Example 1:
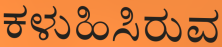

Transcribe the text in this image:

ಕಳುಹಿಸಿರುವ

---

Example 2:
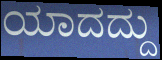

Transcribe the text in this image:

ಯಾದದ್ದು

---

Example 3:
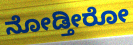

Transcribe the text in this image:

ನೋಡ್ತೀರೋ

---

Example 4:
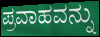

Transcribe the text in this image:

ಪ್ರವಾಹವನ್ನು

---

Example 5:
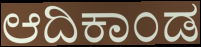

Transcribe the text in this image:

ಆದಿಕಾಂಡ